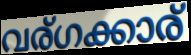
വര്ഗക്കാര്